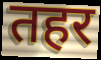
तहर